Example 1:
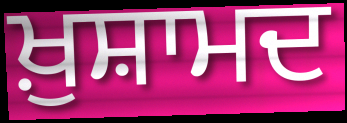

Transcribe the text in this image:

ਖ਼ੁਸ਼ਾਮਦ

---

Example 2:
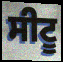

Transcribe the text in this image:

ਸੀਟੂ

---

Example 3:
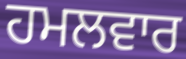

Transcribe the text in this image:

ਹਮਲਵਾਰ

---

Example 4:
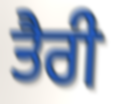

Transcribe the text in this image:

ਤੈਰੀ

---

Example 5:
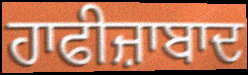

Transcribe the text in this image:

ਹਾਫੀਜ਼ਾਬਾਦ